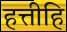
हत्तीहि